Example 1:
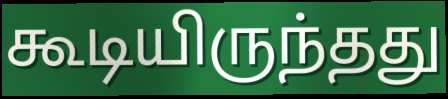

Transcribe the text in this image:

கூடியிருந்தது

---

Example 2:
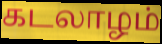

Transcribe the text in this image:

கடலாழம்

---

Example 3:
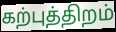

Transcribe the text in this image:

கற்புத்திறம்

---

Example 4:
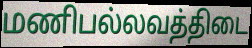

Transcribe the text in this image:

மணிபல்லவத்திடை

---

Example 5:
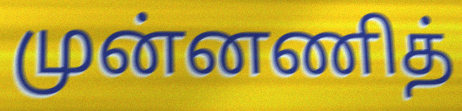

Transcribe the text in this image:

முன்னணித்